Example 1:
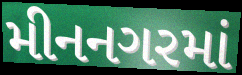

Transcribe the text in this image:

મીનનગરમાં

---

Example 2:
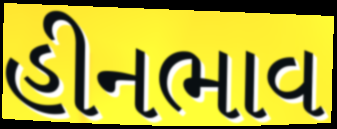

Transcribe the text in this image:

હીનભાવ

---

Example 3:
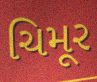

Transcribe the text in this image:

ચિમૂર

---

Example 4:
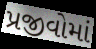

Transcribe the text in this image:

પ્રજીવોમાં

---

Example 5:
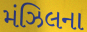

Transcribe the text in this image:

મંઝિલના